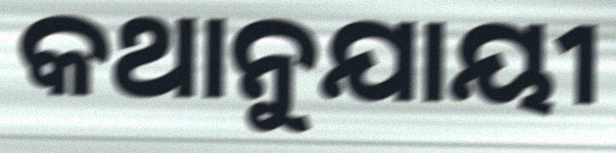
କଥାନୁଯାୟୀ